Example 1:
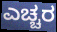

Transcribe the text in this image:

ಎಚ್ಚರ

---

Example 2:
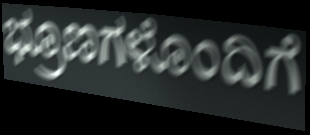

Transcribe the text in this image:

ಭ್ರೂಣಗಳೊಂದಿಗೆ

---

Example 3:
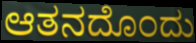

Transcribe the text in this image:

ಆತನದೊಂದು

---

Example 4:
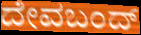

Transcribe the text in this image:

ದೇವಬಂದ್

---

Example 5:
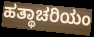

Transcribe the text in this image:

ಹತ್ಥಾಚರಿಯಂ